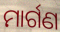
ମାର୍ଗଣ